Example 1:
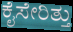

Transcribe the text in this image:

ಕೈಸೇರಿತ್ತು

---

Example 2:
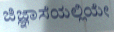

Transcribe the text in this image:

ಜಿಜ್ಞಾಸೆಯಲ್ಲಿಯೇ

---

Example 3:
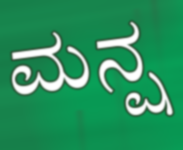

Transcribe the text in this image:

ಮನ್ಷ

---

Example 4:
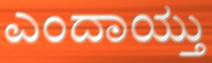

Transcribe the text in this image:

ಎಂದಾಯ್ತು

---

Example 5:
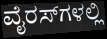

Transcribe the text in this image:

ವೈರಸ್‌ಗಳಲ್ಲಿ